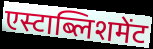
एस्टाब्लिशमेंट